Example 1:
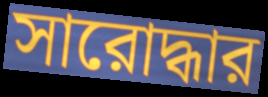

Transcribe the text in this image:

সারোদ্ধার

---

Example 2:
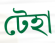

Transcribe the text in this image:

টেহা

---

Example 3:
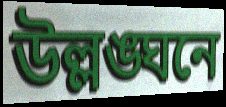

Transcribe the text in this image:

উল্লঙ্ঘনে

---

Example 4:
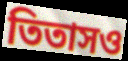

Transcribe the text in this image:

তিতাসও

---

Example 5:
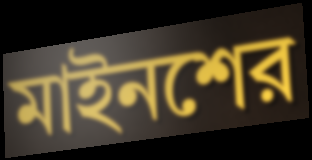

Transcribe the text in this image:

মাইনশের